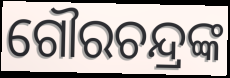
ଗୌରଚନ୍ଦ୍ରଙ୍କ